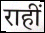
राहीं